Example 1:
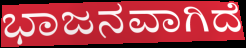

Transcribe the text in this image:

ಭಾಜನವಾಗಿದೆ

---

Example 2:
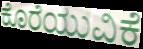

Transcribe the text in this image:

ಕೊರೆಯುವಿಕೆ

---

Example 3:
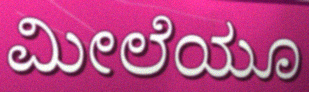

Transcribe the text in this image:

ಮೀಲೆಯೂ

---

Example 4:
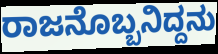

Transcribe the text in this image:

ರಾಜನೊಬ್ಬನಿದ್ದನು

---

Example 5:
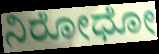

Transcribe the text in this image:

ನಿರೋಧೋ